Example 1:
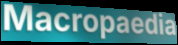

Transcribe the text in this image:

Macropaedia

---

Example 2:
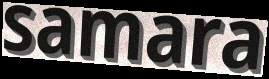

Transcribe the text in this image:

samara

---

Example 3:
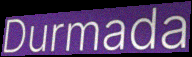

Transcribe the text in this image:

Durmada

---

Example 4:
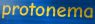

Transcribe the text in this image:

protonema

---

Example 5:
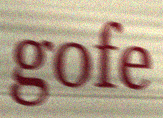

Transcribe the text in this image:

gofe